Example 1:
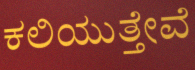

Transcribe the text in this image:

ಕಲಿಯುತ್ತೇವೆ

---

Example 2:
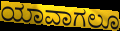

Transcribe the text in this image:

ಯಾವಾಗಲೂ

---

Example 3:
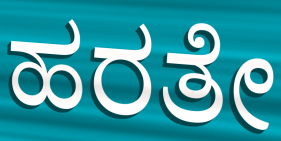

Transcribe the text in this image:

ಹರತೇ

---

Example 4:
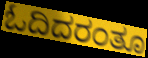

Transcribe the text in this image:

ಓದಿದರಂತೂ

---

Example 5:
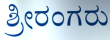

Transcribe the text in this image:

ಶ್ರೀರಂಗರು